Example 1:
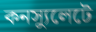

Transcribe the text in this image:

কনস্যুলেটে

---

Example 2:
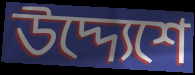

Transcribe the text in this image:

উদ্দ্যেশে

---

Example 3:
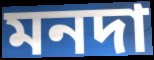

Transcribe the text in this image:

মনদা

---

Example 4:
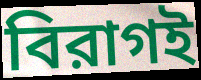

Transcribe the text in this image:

বিরাগই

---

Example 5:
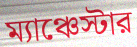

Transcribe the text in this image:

ম্যাঞ্চেস্টার